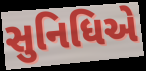
સુનિધિએ